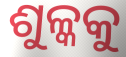
ଶୁଳ୍କକୁ